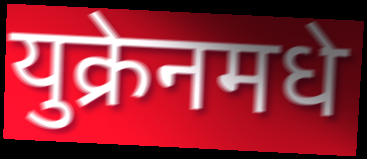
युक्रेनमधे